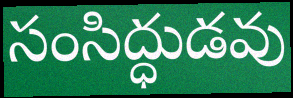
సంసిద్ధుడవు